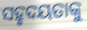
ସହୃଦୟତାକୁ